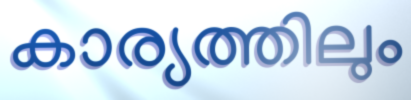
കാര്യത്തിലും